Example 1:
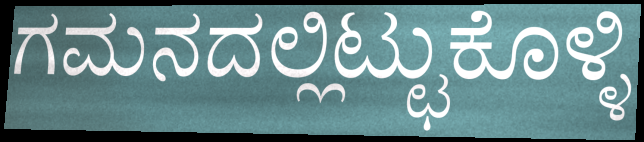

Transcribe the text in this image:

ಗಮನದಲ್ಲಿಟ್ಟುಕೊಳ್ಳಿ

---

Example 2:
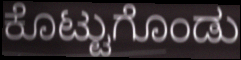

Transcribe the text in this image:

ಕೊಟ್ಟುಗೊಂಡು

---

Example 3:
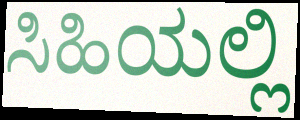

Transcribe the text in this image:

ಸಿಹಿಯಲ್ಲಿ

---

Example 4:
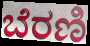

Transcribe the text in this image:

ಬೆರಣಿ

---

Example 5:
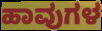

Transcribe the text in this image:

ಹಾವುಗಳ